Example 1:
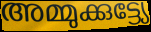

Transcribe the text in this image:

അമ്മുക്കുട്ട്യേ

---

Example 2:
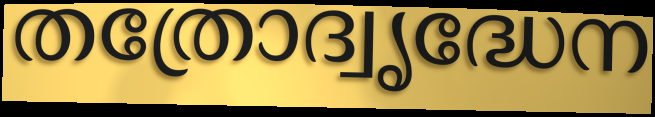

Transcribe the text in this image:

തത്രോദ്വൃദ്ധേന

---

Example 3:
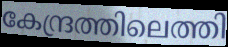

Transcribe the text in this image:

കേന്ദ്രത്തിലെത്തി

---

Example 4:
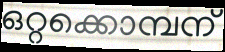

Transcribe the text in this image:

ഒറ്റക്കൊമ്പന്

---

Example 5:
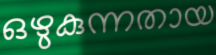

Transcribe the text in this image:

ഒഴുകുന്നതായ